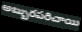
అబ్బురపరిచాయి